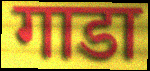
गाडा